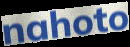
nahoto